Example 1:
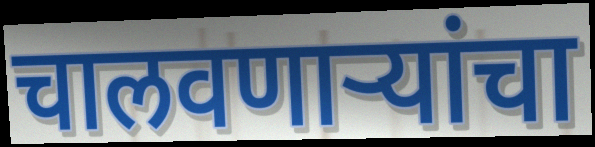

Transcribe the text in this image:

चालवणाऱ्यांचा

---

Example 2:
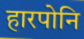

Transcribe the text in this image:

हारपोनि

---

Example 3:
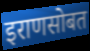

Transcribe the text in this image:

इराणसोबत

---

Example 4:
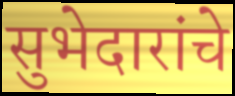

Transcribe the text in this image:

सुभेदारांचे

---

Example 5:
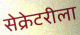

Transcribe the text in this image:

सेक्रेटरीला